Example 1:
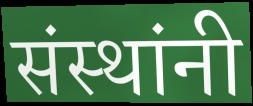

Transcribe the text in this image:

संस्थांनी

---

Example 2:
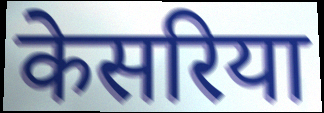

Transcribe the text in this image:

केसरिया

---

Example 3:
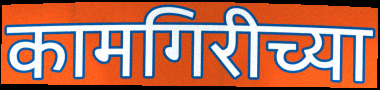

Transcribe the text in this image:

कामगिरीच्या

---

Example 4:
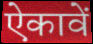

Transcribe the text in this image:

ऐकावें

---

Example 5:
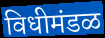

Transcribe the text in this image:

विधीमंडळ